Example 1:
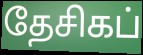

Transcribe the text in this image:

தேசிகப்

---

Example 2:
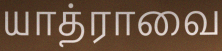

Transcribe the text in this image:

யாத்ராவை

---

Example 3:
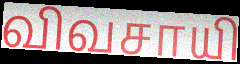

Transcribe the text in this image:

விவசாயி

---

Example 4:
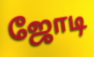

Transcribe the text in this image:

ஜோடி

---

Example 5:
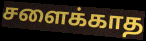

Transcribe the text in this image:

சளைக்காத